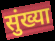
सुंख्या